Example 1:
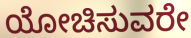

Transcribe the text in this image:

ಯೋಚಿಸುವರೇ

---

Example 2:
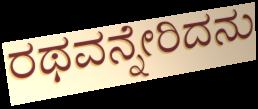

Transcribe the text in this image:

ರಥವನ್ನೇರಿದನು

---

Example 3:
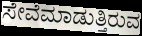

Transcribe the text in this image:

ಸೇವೆಮಾಡುತ್ತಿರುವ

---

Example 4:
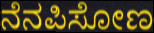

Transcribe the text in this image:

ನೆನಪಿಸೋಣ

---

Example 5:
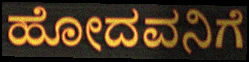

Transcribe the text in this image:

ಹೋದವನಿಗೆ